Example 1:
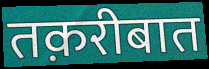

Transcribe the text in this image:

तक़रीबात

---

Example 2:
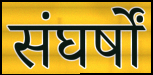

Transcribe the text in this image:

संघर्षों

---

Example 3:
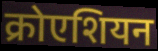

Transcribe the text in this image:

क्रोएशियन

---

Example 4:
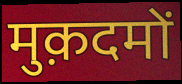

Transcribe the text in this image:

मुक़दमों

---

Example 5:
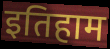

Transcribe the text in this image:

इतिहाम